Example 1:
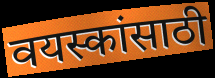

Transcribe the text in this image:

वयस्कांसाठी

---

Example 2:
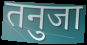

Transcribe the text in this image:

तनुजा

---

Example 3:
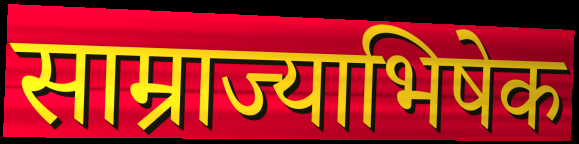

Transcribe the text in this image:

साम्राज्याभिषेक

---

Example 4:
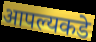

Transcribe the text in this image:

आपल्यकडे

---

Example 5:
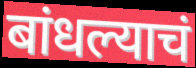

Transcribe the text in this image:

बांधल्याचं